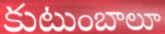
కుటుంబాలూ